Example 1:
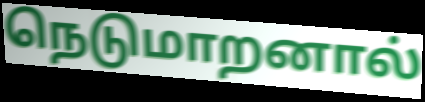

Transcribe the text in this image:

நெடுமாறனால்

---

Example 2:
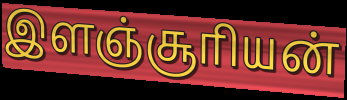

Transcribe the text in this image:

இளஞ்சூரியன்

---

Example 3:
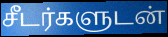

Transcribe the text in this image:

சீடர்களுடன்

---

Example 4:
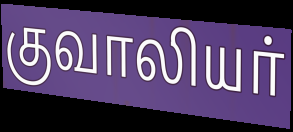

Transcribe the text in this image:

குவாலியர்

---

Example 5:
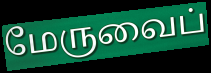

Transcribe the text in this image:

மேருவைப்